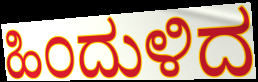
ಹಿಂದುಳಿದ